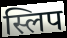
स्लिप